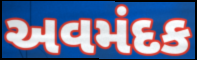
અવમંદક